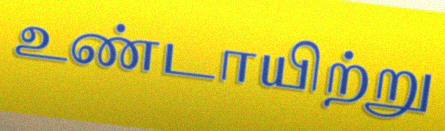
உண்டாயிற்று